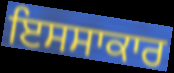
ਇਸਸਾਕਾਰ